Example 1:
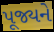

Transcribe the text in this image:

પૂજ્યને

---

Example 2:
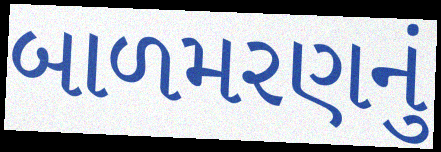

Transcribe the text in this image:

બાળમરણનું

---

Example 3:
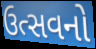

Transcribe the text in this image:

ઉત્સવનો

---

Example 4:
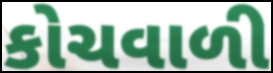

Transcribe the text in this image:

કોચવાળી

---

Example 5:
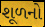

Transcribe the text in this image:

શૂળનો